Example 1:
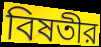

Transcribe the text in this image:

বিষতীর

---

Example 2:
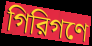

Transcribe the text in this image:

গিরিগণে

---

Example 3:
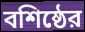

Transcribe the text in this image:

বশিষ্ঠের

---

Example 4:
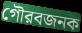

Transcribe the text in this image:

গৌরবজনক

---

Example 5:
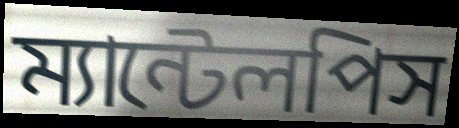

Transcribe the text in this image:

ম্যান্টেলপিস